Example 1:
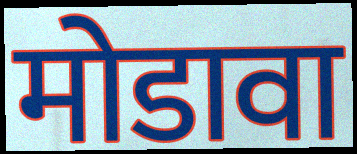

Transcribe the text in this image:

मोडावा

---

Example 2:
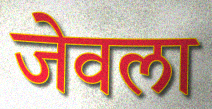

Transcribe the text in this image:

जेवला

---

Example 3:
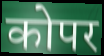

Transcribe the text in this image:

कोपर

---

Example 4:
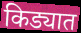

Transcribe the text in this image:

किड्यात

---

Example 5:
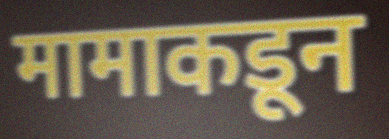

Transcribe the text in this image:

मामाकडून